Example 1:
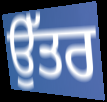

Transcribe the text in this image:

ਉੱਤਰ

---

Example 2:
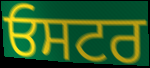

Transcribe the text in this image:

ਓਸਟਰ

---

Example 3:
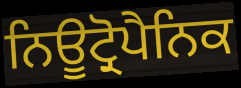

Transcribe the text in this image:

ਨਿਊਟ੍ਰੋਪੈਨਿਕ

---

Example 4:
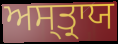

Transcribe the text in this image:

ਅਸ੍ਤ੍ਰਾਯ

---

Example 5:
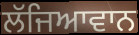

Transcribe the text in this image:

ਲੱਜਿਆਵਾਨ